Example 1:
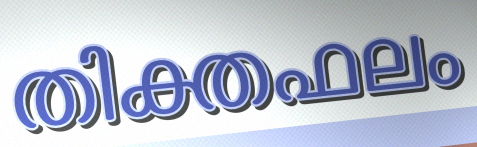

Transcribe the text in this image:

തിക്തഫലം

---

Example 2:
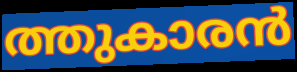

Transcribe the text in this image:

ത്തുകാരൻ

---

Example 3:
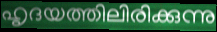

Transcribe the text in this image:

ഹൃദയത്തിലിരിക്കുന്നു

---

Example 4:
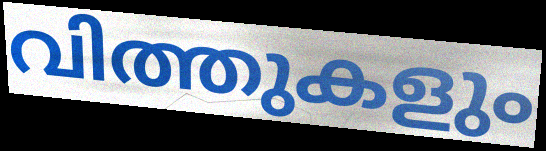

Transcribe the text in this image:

വിത്തുകളും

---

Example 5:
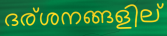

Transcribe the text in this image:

ദര്ശനങ്ങളില്